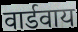
वार्डवाय